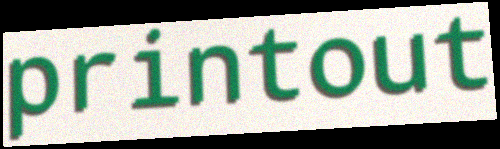
printout